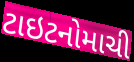
ટાઇટનોમાચી